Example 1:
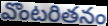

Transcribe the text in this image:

వొంటరితనం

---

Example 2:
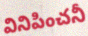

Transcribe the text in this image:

వినిపించనీ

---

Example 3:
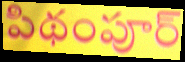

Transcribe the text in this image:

పిథంపూర్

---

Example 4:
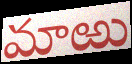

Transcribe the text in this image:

మాఱు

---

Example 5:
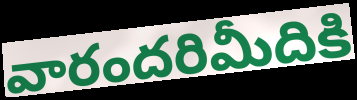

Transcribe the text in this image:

వారందరిమీదికి